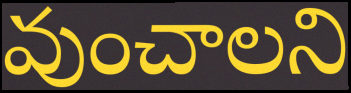
వుంచాలని